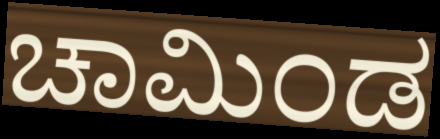
ಚಾಮಿಂಡ